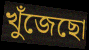
খুঁজেছো